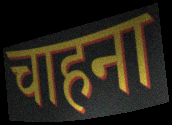
चाहना